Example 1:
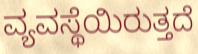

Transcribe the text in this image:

ವ್ಯವಸ್ಥೆಯಿರುತ್ತದೆ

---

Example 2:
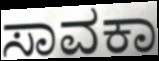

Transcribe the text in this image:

ಸಾವಕಾ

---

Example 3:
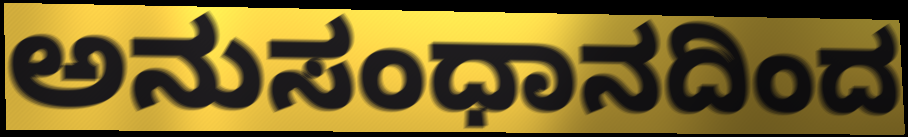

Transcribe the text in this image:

ಅನುಸಂಧಾನದಿಂದ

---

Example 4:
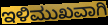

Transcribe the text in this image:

ಇಳಿಮುಖವಾಗಿ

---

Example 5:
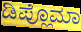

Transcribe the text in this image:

ಡಿಪ್ಲೊಮಾ